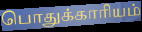
பொதுக்காரியம்